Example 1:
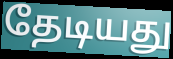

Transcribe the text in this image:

தேடியது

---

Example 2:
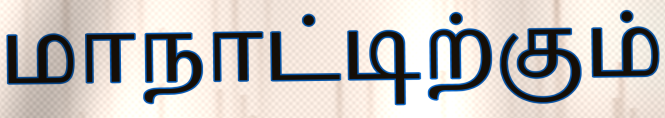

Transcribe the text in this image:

மாநாட்டிற்கும்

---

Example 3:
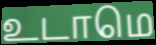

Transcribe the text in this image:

உடாமெ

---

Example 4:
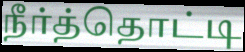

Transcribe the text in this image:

நீர்த்தொட்டி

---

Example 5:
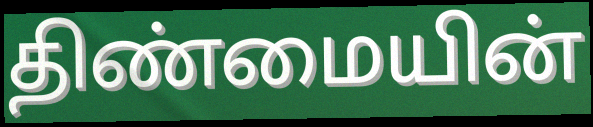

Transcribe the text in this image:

திண்மையின்